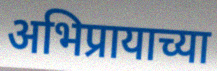
अभिप्रायाच्या